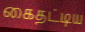
கைதட்டிய